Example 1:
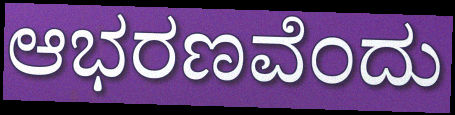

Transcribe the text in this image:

ಆಭರಣವೆಂದು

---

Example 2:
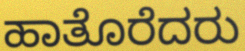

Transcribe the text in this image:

ಹಾತೊರೆದರು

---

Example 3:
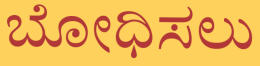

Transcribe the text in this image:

ಬೋಧಿಸಲು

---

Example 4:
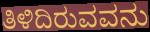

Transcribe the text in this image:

ತಿಳಿದಿರುವವನು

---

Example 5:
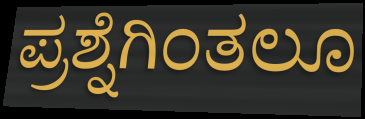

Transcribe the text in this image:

ಪ್ರಶ್ನೆಗಿಂತಲೂ